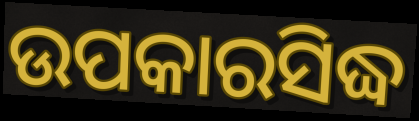
ଉପକାରସିଦ୍ଧ